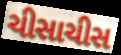
ચીસાચીસ